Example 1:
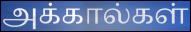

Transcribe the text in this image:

அக்கால்கள்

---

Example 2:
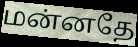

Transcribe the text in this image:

மன்னதே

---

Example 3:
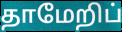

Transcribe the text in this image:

தாமேறிப்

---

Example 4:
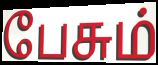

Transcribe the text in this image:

பேசும்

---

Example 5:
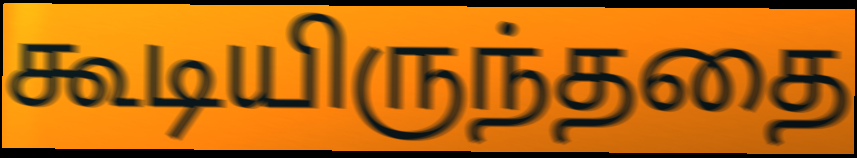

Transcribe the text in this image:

கூடியிருந்ததை